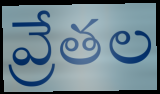
వ్రేతల